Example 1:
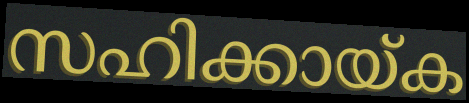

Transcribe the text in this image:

സഹിക്കായ്ക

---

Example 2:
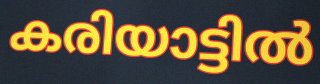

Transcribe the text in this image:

കരിയാട്ടിൽ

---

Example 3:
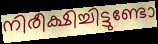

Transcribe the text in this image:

നിരീക്ഷിച്ചിട്ടുണ്ടോ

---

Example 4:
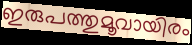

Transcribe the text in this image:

ഇരുപത്തുമൂവായിരം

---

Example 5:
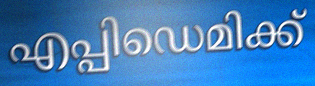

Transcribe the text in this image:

എപ്പിഡെമിക്ക്